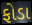
ફોડા